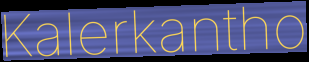
Kalerkantho